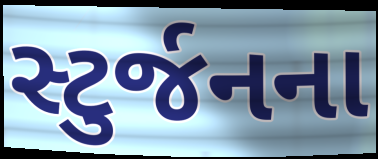
સ્ટુર્જનના